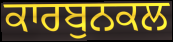
ਕਾਰਬੁਨਕਲ